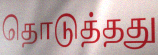
தொடுத்தது